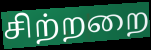
சிற்றறை